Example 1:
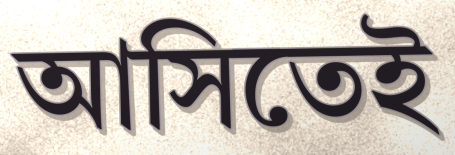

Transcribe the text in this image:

আসিতেই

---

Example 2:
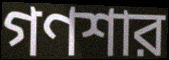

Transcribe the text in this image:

গণশার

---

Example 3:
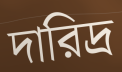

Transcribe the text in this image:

দারিদ্র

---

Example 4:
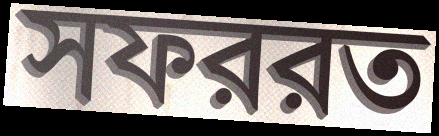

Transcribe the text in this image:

সফররত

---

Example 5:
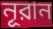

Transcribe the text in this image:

নূরান